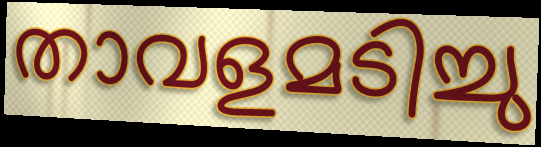
താവളമടിച്ചു